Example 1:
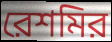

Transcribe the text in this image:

রেশমির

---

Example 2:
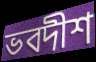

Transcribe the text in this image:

ভবদীশ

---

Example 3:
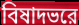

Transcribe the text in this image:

বিষাদভরে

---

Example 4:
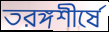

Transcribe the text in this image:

তরঙ্গশীর্ষে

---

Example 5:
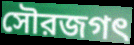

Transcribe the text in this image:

সৌরজগৎ